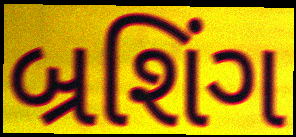
બ્રશિંગ